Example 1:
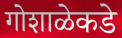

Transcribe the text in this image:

गोशाळेकडे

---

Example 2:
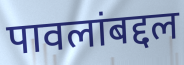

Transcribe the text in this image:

पावलांबद्दल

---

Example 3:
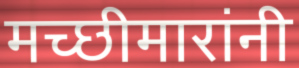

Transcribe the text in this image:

मच्छीमारांनी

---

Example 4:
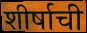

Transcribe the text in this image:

शीर्षाची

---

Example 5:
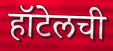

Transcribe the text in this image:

हॉटेलची